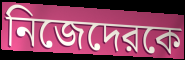
নিজেদেরকে